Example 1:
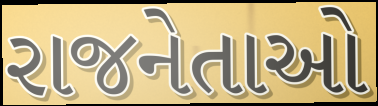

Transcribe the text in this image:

રાજનેતાઓ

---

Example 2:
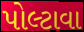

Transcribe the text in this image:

પોલ્ટાવા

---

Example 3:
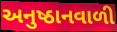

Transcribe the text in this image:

અનુષ્ઠાનવાળી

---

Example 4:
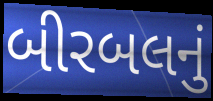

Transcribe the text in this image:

બીરબલનું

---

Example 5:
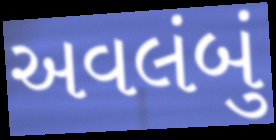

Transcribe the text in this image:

અવલંબું